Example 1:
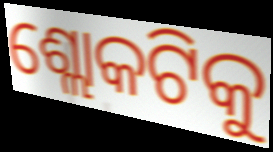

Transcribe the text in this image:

ଶ୍ଲୋକଟିକୁ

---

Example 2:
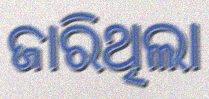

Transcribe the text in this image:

ଜାରିଥିଲା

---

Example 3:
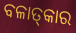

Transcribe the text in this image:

ବଳାତ୍‌କାର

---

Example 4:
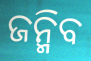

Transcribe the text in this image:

ଜନ୍ମିବ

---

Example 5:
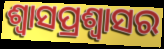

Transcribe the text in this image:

ଶ୍ଵାସପ୍ରଶ୍ଵାସର